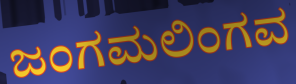
ಜಂಗಮಲಿಂಗವ